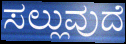
ಸಲ್ಲುವುದೆ